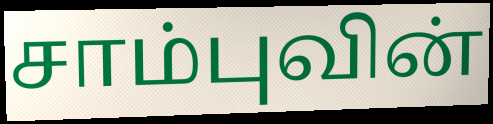
சாம்புவின்